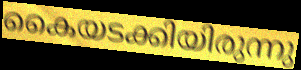
കൈയടക്കിയിരുന്നു